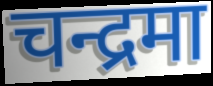
चन्द्रमा